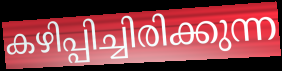
കഴിപ്പിച്ചിരിക്കുന്ന